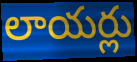
లాయర్లు